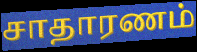
சாதாரணம்